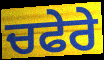
ਚਫੇਰੇ